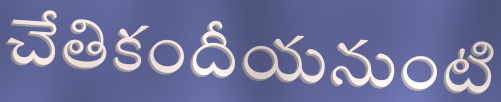
చేతికందీయనుంటి